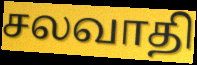
சலவாதி